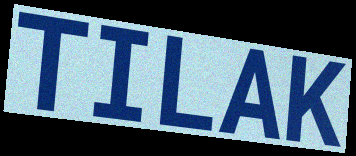
TILAK